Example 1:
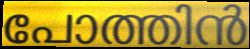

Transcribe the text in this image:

പോത്തിൻ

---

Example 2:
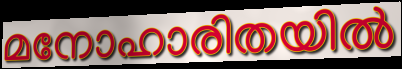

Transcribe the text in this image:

മനോഹാരിതയിൽ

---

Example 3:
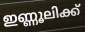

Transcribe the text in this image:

ഇണ്ണൂലിക്ക്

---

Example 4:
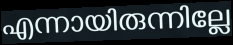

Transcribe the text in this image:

എന്നായിരുന്നില്ലേ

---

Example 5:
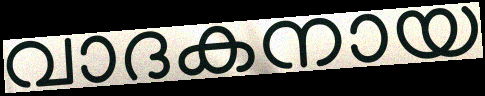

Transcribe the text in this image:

വാദകനായ